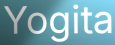
Yogita